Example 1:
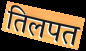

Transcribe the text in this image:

तिलपत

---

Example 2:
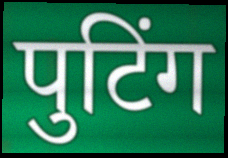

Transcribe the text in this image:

पुटिंग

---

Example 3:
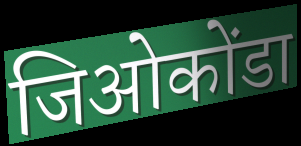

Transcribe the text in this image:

जिओकोंडा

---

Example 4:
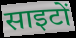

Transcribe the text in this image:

साइटों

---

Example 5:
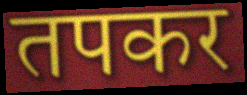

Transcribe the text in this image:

तपकर